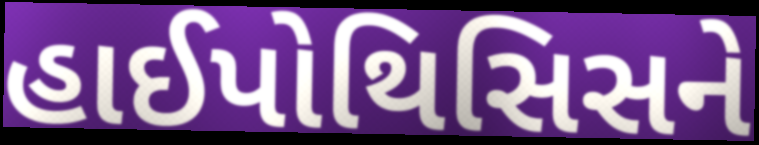
હાઈપોથિસિસને